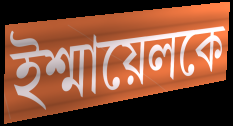
ইশ্মায়েলকে